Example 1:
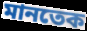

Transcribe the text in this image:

মানতেক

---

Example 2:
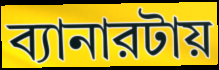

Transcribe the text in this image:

ব্যানারটায়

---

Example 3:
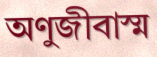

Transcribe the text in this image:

অণুজীবাস্ম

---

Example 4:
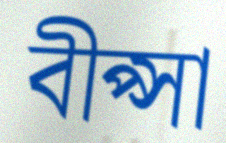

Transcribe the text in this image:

বীপ্সা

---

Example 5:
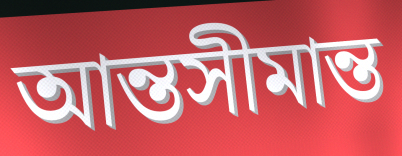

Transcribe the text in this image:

আন্তসীমান্ত